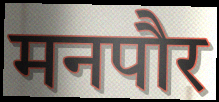
मनपौर